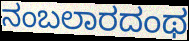
ನಂಬಲಾರದಂಥ